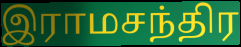
இராமசந்திர